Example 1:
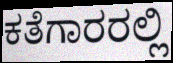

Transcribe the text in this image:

ಕತೆಗಾರರಲ್ಲಿ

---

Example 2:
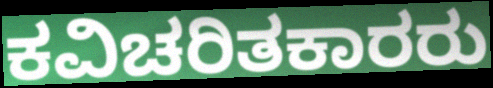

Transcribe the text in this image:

ಕವಿಚರಿತಕಾರರು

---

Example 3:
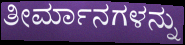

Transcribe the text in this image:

ತೀರ್ಮಾನಗಳನ್ನು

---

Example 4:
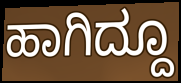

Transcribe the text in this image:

ಹಾಗಿದ್ದೂ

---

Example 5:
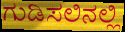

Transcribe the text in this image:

ಗುಡಿಸಲಿನಲ್ಲಿ